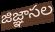
జిజ్ఞాసల